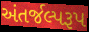
અંતર્જલ્પરૂપ